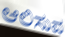
ಆಲಿಸುವ